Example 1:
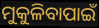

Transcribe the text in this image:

ମୁକୁଳିବାପାଇଁ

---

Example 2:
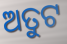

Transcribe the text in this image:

ଅତୁଟ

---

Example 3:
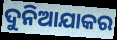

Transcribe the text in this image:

ଦୁନିଆଯାକର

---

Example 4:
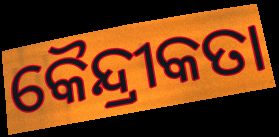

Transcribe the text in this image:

କୈନ୍ଦ୍ରୀକତା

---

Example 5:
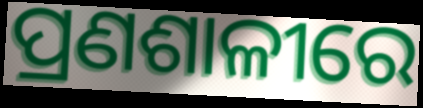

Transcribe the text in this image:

ପ୍ରଣଶାଳୀରେ